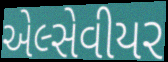
એલ્સેવીયર